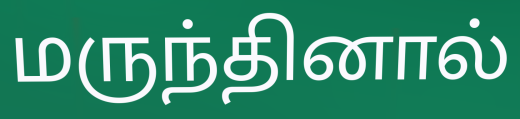
மருந்தினால்